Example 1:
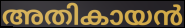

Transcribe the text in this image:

അതികായൻ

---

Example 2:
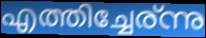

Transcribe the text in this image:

എത്തിച്ചേര്ന്നു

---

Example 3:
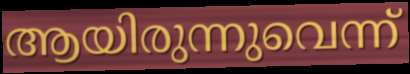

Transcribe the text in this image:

ആയിരുന്നുവെന്ന്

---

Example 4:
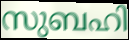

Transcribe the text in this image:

സുബഹി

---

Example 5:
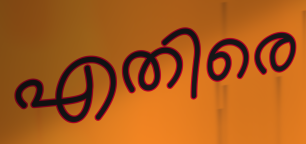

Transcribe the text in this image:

എതിരെ